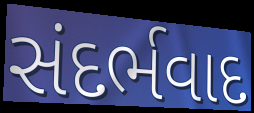
સંદર્ભવાદ